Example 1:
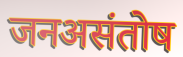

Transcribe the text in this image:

जनअसंतोष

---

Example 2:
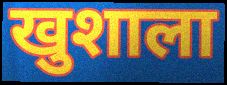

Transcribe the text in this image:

खुशाला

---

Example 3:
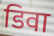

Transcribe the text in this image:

डिवा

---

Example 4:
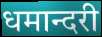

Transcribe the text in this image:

धमान्दरी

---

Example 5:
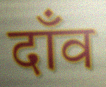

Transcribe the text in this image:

दाँव